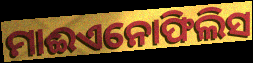
ମାଈଏନୋଫିଲିସ